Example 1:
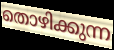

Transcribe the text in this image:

തൊഴിക്കുന്ന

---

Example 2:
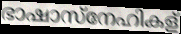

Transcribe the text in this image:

ഭാഷാസ്നേഹികള്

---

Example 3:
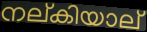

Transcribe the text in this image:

നല്കിയാല്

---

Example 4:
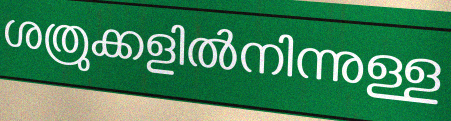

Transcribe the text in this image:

ശത്രുക്കളിൽനിന്നുള്ള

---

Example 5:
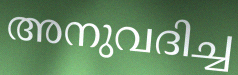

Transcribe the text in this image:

അനുവദിച്ച